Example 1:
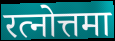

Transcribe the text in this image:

रत्नोत्तमा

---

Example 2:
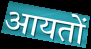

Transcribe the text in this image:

आयतों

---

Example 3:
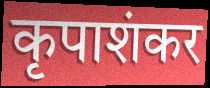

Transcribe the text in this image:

कृपाशंकर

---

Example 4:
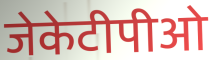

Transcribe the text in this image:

जेकेटीपीओ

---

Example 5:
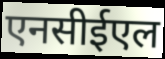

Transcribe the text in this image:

एनसीईएल